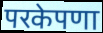
परकेपणा